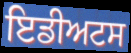
ਇਡੀਅਟਸ